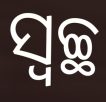
ସ୍ବଚ୍ଛ